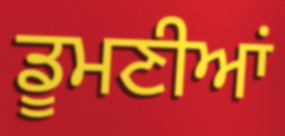
ਡੂਮਣੀਆਂ